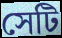
সেটি